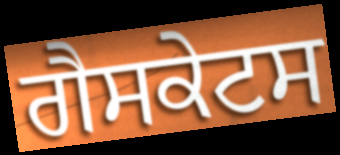
ਗੈਸਕੇਟਸ